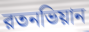
রতনভিয়ান